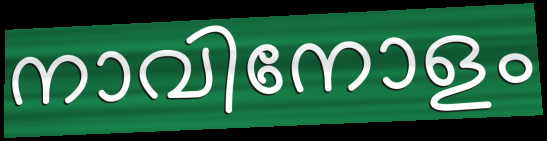
നാവിനോളം